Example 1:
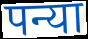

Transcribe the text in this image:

पन्या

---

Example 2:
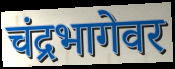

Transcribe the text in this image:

चंद्रभागेवर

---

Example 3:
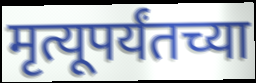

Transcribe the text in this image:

मृत्यूपर्यंतच्या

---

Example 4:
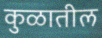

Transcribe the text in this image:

कुळातील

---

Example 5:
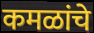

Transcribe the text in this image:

कमळांचे